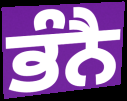
ਭੰਨੈ